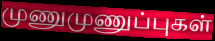
முணுமுணுப்புகள்